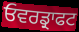
ਓਵਰਡ੍ਰਾਫਟ